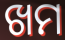
ଖମ